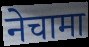
नेचामा